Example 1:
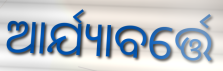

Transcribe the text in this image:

ଆର୍ଯ୍ୟାବର୍ତ୍ତେ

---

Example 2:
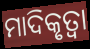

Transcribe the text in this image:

ମାଦିକୃତ୍ୱା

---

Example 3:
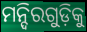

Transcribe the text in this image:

ମନ୍ଦିରଗୁଡ଼ିକୁ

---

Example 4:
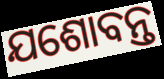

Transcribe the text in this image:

ଯଶୋବନ୍ତ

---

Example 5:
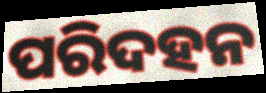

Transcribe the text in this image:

ପରିଦହନ